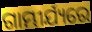
ଗାମ୍ଭୀର୍ଯ୍ୟରେ